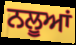
ਨਲੂਆਂ